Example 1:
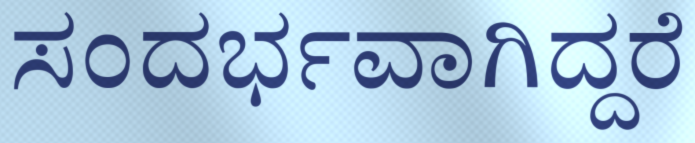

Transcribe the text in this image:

ಸಂದರ್ಭವಾಗಿದ್ದರೆ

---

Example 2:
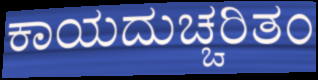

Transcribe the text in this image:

ಕಾಯದುಚ್ಚರಿತಂ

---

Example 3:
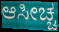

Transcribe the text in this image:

ಆಸೀಚ್ಚ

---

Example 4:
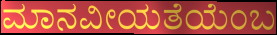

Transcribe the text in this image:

ಮಾನವೀಯತೆಯೆಂಬ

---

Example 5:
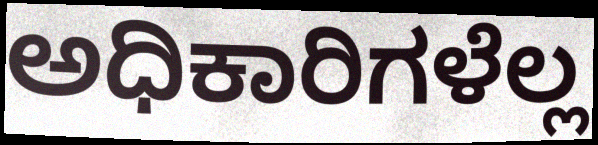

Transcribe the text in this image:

ಅಧಿಕಾರಿಗಳೆಲ್ಲ